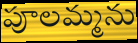
పూలమ్మను